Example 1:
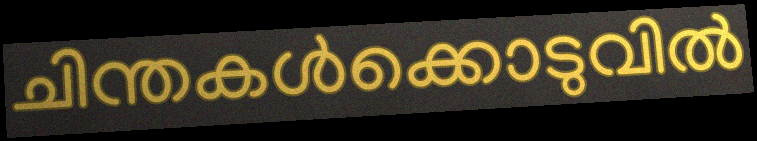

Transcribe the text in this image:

ചിന്തകൾക്കൊടുവിൽ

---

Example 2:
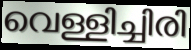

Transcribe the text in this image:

വെള്ളിച്ചിരി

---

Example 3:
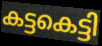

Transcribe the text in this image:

കട്ടകെട്ടി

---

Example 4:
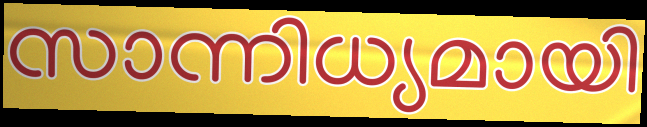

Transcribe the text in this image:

സാന്നിധ്യമായി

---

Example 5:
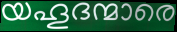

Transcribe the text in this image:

യഹൂദന്മാരെ